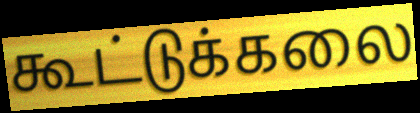
கூட்டுக்கலை